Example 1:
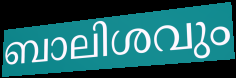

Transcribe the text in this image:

ബാലിശവും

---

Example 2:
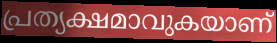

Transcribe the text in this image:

പ്രത്യക്ഷമാവുകയാണ്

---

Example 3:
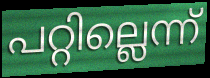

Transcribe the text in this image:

പറ്റില്ലെന്ന്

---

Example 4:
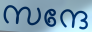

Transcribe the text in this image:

സന്ദേ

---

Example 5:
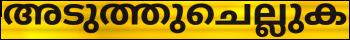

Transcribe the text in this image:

അടുത്തുചെല്ലുക